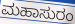
ಮಹಾಸುರಂ